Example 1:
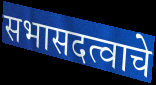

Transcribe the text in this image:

सभासदत्वाचे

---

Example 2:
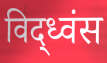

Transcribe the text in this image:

विद्ध्वंस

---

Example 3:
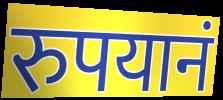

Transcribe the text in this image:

रुपयानं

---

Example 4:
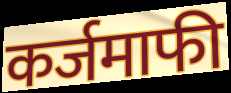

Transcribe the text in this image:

कर्जमाफी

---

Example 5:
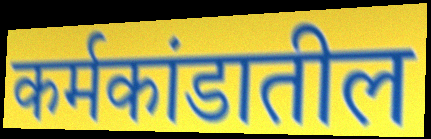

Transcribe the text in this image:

कर्मकांडातील